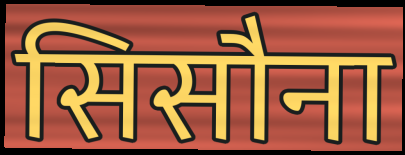
सिसौना